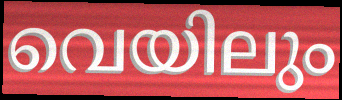
വെയിലും